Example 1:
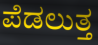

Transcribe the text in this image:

ಪೆಡಲುತ್ತ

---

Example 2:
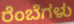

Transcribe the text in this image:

ರೆಂಬೆಗಳು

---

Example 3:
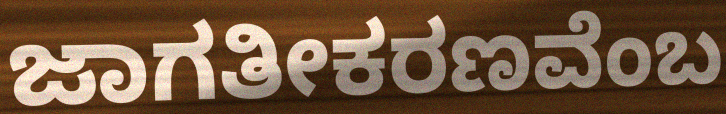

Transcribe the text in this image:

ಜಾಗತೀಕರಣವೆಂಬ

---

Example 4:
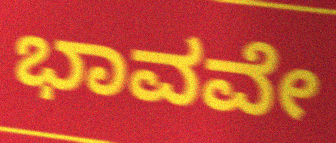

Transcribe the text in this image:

ಭಾವವೇ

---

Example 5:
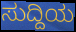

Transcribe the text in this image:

ಸುದ್ದಿಯ